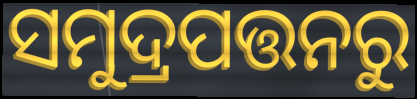
ସମୁଦ୍ରପତ୍ତନରୁ